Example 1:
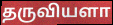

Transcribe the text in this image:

தருவியளா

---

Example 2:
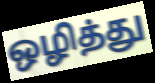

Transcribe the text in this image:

ஒழித்து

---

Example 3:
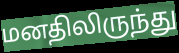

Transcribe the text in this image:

மனதிலிருந்து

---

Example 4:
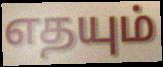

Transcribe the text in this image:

எதயும்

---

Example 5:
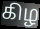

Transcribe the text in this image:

கிழ